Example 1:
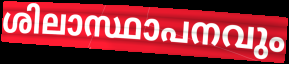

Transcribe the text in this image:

ശിലാസ്ഥാപനവും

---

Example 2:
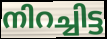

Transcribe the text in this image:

നിറച്ചിട്ട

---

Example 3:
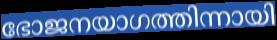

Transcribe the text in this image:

ഭോജനയാഗത്തിന്നായി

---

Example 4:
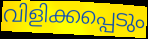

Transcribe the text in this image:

വിളിക്കപ്പെടും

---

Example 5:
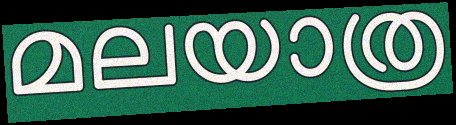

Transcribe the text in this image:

മലയാത്ര